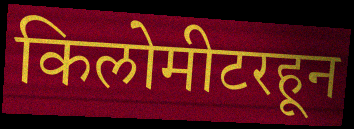
किलोमीटरहून